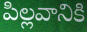
పిల్లవానికి